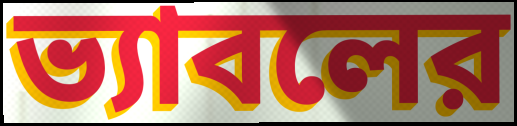
ভ্যাবলের